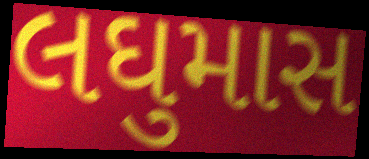
લઘુમાસ